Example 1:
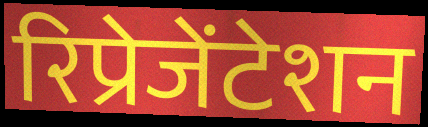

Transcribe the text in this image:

रिप्रेजेंटेशन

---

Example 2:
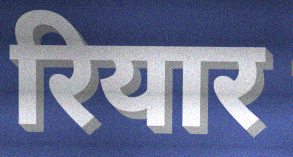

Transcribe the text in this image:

रियार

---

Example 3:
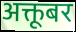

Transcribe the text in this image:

अक्तूबर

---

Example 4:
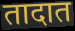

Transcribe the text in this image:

तादात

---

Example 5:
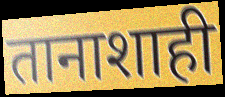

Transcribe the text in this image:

तानाशाही